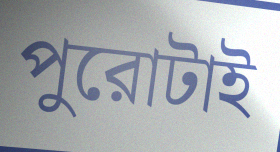
পুরোটাই